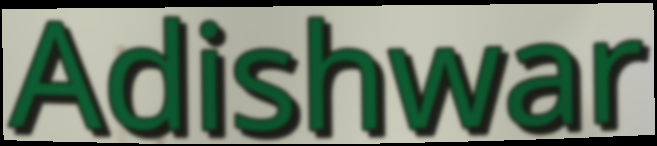
Adishwar